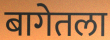
बागेतला